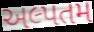
અલ્પતમ